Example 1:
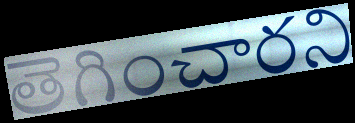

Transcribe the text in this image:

తెగించారని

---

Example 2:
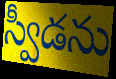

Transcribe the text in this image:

స్వీడను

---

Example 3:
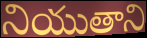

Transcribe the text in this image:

నియుతాని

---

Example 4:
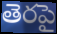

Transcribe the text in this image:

తెరపై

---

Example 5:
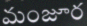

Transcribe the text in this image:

మంజూర